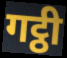
गट्ठी